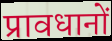
प्रावधानों